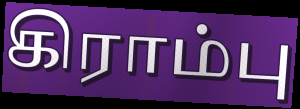
கிராம்பு